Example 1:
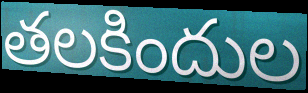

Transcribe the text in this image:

తలకిందుల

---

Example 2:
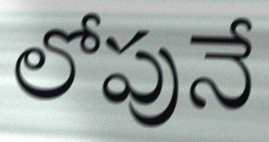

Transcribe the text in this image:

లోపునే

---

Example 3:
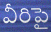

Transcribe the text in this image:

వీరిపై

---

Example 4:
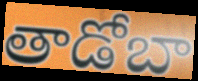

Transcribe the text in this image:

తాడోబా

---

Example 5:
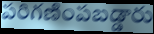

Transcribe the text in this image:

పరిగణింపబడ్డారు